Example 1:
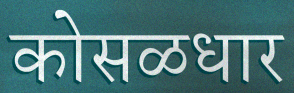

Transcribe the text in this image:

कोसळधार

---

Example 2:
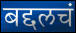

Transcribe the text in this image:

बद्दलचं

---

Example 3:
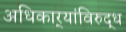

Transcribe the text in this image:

अधिकार्यांविरुद्ध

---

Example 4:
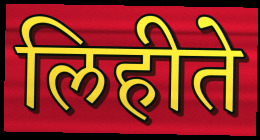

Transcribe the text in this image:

लिहीते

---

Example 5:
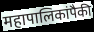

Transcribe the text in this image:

महापालिकांपैकी